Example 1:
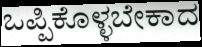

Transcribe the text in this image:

ಒಪ್ಪಿಕೊಳ್ಳಬೇಕಾದ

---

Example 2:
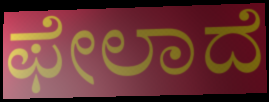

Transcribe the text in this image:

ಫೇಲಾದೆ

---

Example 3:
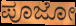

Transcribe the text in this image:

ಪೂಜೋ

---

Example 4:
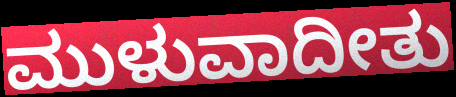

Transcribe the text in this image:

ಮುಳುವಾದೀತು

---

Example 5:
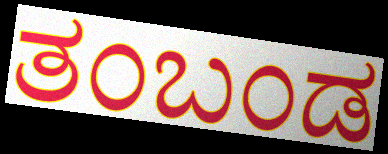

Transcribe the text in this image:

ತಂಬಂಡ